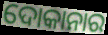
ଦୋକାନାର